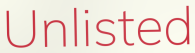
Unlisted